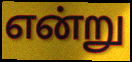
என்று